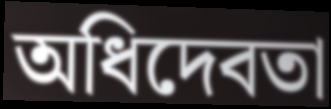
অধিদেবতা